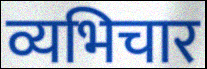
व्यभिचार